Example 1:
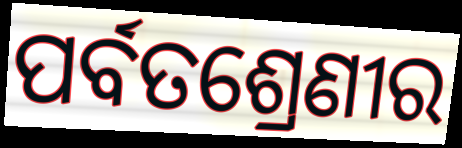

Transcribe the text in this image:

ପର୍ବତଶ୍ରେଣୀର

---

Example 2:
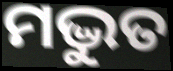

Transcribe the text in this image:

ମଦ୍ଭୁତ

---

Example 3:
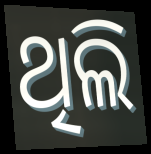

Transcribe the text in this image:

ଥିଲି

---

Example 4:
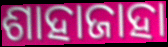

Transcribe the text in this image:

ଶାହାଜାହା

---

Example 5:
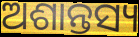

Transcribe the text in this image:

ଅଶାନ୍ତସ୍ୟ